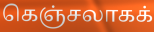
கெஞ்சலாகக்